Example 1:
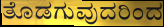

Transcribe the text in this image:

ತೊಡಗುವುದರಿಂದ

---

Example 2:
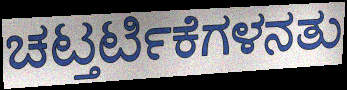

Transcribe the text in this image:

ಚಟ್ತರ್ಟಿಕೆಗಳನತು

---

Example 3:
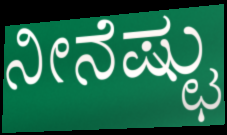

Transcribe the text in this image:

ನೀನೆಷ್ಟು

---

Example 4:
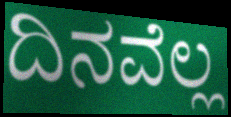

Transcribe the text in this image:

ದಿನವೆಲ್ಲ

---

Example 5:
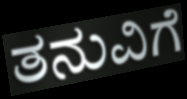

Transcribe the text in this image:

ತನುವಿಗೆ